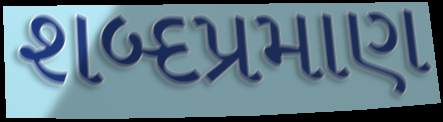
શબ્દપ્રમાણ